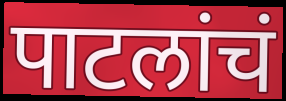
पाटलांचं